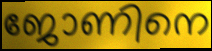
ജോണിനെ